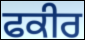
ਫਕੀਰ